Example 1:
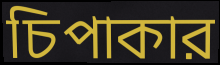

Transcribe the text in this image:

চিপাকার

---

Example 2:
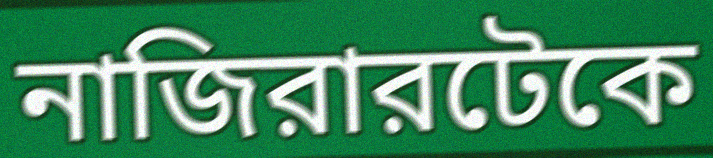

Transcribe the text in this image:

নাজিরারটেকে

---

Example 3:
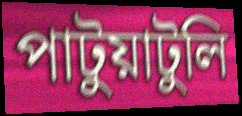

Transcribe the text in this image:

পাটুয়াটুলি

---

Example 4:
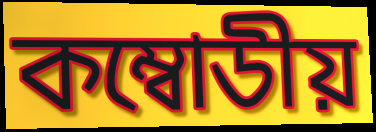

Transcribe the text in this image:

কম্বোডীয়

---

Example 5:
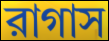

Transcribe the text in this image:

রাগাস